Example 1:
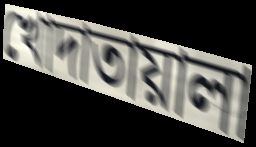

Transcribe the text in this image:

খোদাতায়ালা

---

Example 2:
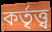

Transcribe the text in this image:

কর্তৃত্ত্ব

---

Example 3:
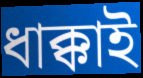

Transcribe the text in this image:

ধাক্কাই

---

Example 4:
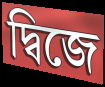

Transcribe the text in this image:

দ্বিজে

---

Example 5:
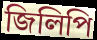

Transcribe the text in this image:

জিলিপি